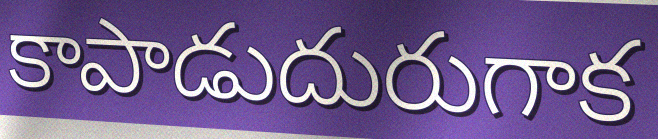
కాపాడుదురుగాక